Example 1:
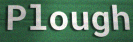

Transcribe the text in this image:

Plough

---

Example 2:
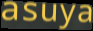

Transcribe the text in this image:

asuya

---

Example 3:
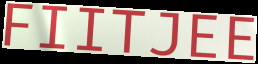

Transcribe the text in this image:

FIITJEE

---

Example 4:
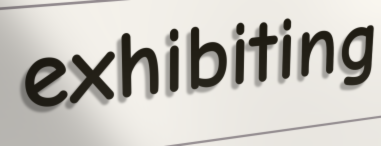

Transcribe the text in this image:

exhibiting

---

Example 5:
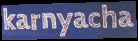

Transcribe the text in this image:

karnyacha